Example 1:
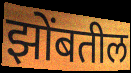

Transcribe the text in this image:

झोंबतील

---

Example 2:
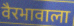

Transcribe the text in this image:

वैरभावाला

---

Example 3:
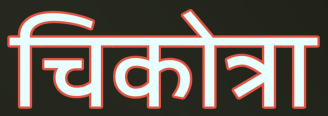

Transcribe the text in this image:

चिकोत्रा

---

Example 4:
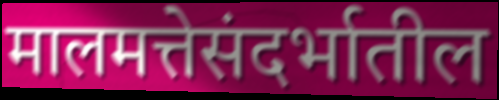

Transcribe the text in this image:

मालमत्तेसंदर्भातील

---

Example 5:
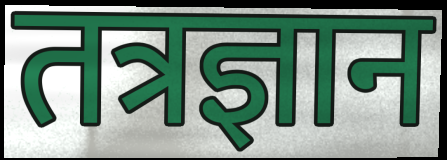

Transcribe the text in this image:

तत्रज्ञान